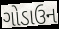
ગોડાઉન